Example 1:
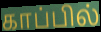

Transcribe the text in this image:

காப்பில்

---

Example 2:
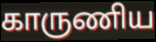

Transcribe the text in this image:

காருணிய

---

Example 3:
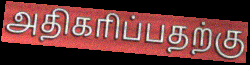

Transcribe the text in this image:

அதிகரிப்பதற்கு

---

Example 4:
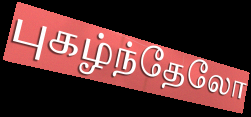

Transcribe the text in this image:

புகழ்ந்தேலோ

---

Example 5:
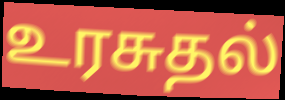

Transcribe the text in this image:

உரசுதல்